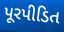
પૂરપીડિત